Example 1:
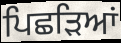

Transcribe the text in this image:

ਪਿਛੜਿਆਂ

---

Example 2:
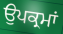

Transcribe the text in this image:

ਉਪਕ੍ਰਮਾਂ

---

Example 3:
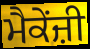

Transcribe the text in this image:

ਮੈਕੇਂਜ਼ੀ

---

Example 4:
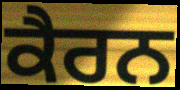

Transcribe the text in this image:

ਕੈਰਨ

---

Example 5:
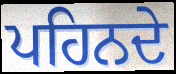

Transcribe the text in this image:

ਪਹਿਨਦੇ